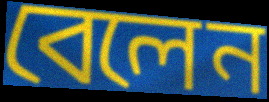
বেলেন